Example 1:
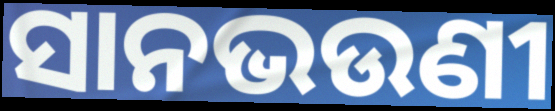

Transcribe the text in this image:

ସାନଭଉଣୀ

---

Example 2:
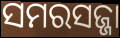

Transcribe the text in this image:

ସମରସଜ୍ଜା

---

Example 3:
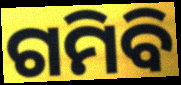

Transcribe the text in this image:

ଗମିବି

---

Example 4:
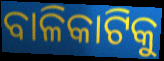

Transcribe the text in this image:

ବାଳିକାଟିକୁ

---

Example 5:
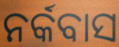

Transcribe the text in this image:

ନର୍କବାସ